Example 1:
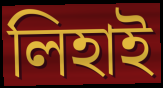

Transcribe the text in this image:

লিহাই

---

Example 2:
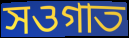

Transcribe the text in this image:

সওগাত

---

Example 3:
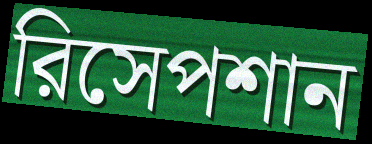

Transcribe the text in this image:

রিসেপশান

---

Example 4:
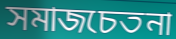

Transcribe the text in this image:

সমাজচেতনা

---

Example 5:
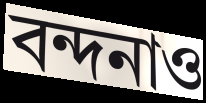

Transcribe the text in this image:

বন্দনাও